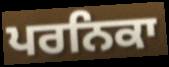
ਪਰਨਿਕਾ